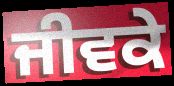
ਜੀਵਕੇ